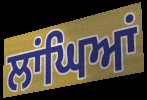
ਲਾਂਘਿਆਂ